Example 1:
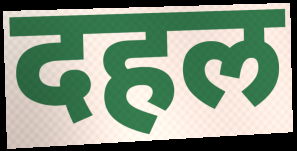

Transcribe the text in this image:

दहल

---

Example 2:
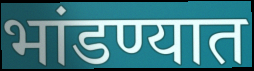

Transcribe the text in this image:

भांडण्यात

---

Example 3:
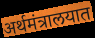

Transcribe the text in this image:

अर्थमंत्रालयात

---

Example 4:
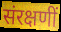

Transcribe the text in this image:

संरक्षणीं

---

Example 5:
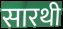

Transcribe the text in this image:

सारथी